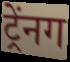
ट्र्रेंनग